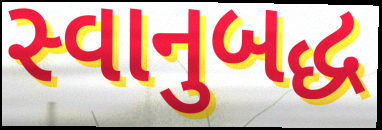
સ્વાનુબદ્ધ